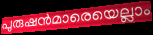
പുരുഷൻമാരെയെല്ലാം